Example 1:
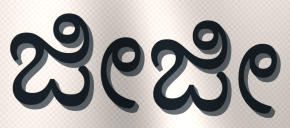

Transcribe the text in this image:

ಜೀಜೀ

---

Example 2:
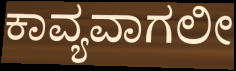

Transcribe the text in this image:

ಕಾವ್ಯವಾಗಲೀ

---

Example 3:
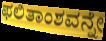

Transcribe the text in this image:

ಫಲಿತಾಂಶವನ್ನೇ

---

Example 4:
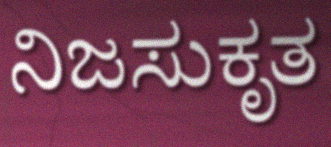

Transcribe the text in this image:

ನಿಜಸುಕೃತ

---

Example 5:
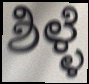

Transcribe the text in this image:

ಶಿಳ್ಳೆ